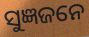
ସୁଜ୍ଞଜନେ